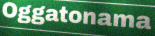
Oggatonama